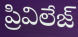
ప్రివిలేజ్